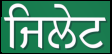
ਜਿਲੇਟ